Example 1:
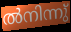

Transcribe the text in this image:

ൽനിന്നു്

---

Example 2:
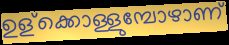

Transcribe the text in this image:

ഉള്ക്കൊള്ളുമ്പോഴാണ്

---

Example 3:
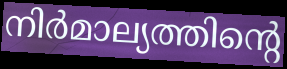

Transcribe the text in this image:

നിർമാല്യത്തിന്റെ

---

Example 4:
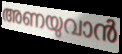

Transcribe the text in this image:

അണയുവാൻ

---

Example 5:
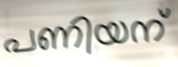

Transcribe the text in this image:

പണിയന്